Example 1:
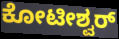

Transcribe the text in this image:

ಕೋಟೀಶ್ವರ್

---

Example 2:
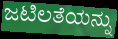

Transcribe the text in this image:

ಜಟಿಲತೆಯನ್ನು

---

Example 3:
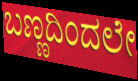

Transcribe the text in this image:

ಬಣ್ಣದಿಂದಲೇ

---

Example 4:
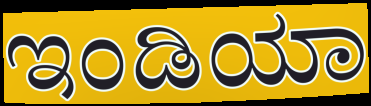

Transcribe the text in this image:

ಇಂಡಿಯಾ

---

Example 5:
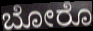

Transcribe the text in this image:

ಬೋರೊ